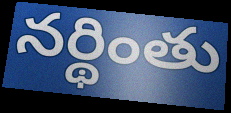
నర్థింతు